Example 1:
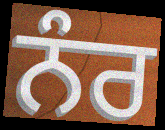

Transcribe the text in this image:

ਨੰਰ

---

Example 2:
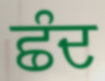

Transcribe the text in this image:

ਛੰਦ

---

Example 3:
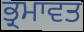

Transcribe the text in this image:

ਭ੍ਰਮਾਵਤ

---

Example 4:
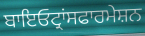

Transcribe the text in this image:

ਬਾਇਓਟ੍ਰਾਂਸਫਾਰਮੇਸ਼ਨ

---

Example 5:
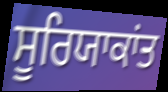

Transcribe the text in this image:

ਸੂਰਿਯਾਕਾਂਤ